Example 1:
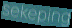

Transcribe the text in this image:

sekeping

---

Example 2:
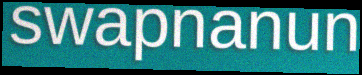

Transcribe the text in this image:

swapnanun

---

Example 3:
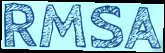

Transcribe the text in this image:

RMSA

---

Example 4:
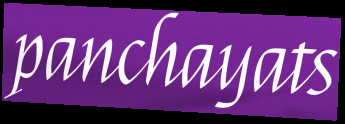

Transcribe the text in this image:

panchayats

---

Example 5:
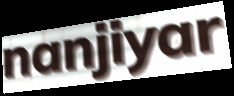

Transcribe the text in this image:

nanjiyar